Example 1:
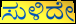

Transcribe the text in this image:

ಸುಳಿದೇ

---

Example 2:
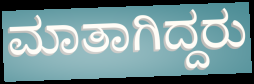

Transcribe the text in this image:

ಮಾತಾಗಿದ್ದರು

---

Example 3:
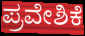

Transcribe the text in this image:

ಪ್ರವೇಶಿಕೆ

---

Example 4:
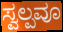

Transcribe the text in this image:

ಸ್ವಲ್ಪವೂ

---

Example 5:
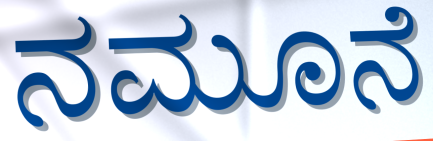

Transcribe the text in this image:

ನಮೂನೆ